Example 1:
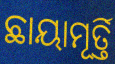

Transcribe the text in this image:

ଛାୟାମୂର୍ତ୍ତି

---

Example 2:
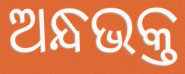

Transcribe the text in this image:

ଅନ୍ଧଭକ୍ତ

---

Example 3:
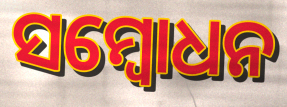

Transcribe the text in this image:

ସମ୍ବୋଧନ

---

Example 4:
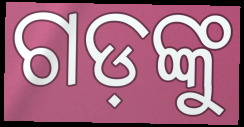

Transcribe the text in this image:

ଗଡ଼ଙ୍କୁ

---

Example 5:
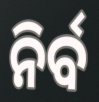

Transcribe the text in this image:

ନିର୍ବ